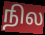
நில